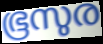
ഭൂസുര